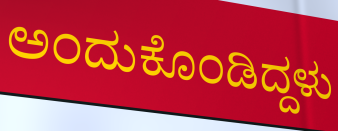
ಅಂದುಕೊಂಡಿದ್ದಳು